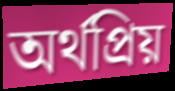
অর্থপ্রিয়